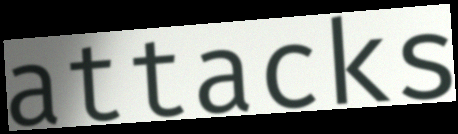
attacks